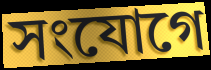
সংযোগে